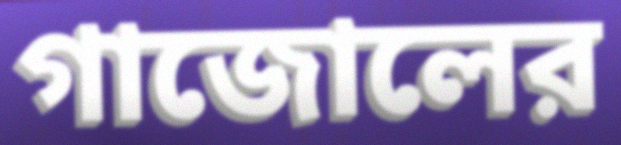
গাজোলের